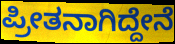
ಪ್ರೀತನಾಗಿದ್ದೇನೆ